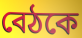
বেঠকে